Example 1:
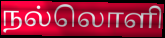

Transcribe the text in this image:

நல்லொளி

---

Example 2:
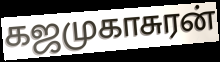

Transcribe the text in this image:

கஜமுகாசுரன்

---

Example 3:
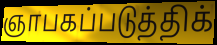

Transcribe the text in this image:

ஞாபகப்படுத்திக்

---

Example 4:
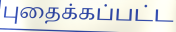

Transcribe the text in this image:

புதைக்கப்பட்ட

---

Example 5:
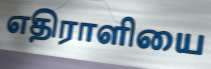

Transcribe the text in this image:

எதிராளியை